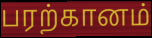
பரற்கானம்